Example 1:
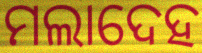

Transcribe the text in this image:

ମଲାଦେହ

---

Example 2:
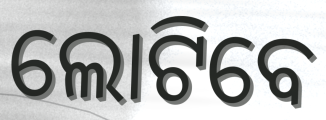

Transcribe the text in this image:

ଲୋଟିବେ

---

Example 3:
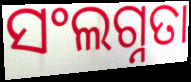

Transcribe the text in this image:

ସଂଲଗ୍ନତା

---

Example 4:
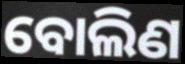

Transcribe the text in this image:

ବୋଲିଣ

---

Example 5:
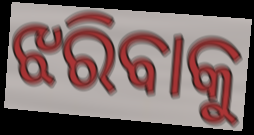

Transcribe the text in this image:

ଝରିବାକୁ